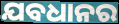
ଯବଧାନର